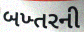
બખ્તરની